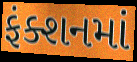
ફંક્શનમાં